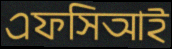
এফসিআই